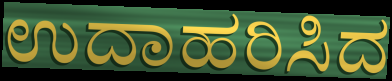
ಉದಾಹರಿಸಿದ